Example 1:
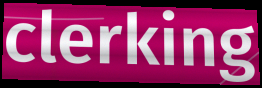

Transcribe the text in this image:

clerking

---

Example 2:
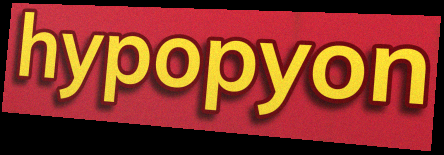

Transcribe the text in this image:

hypopyon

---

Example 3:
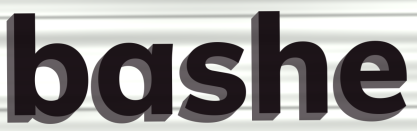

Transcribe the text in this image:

bashe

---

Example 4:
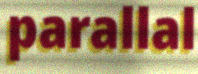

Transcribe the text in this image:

parallal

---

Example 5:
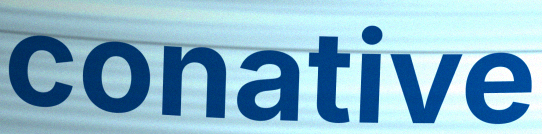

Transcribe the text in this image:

conative